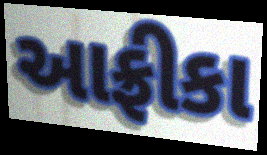
આફ્રીકા